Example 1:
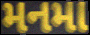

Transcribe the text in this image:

મનમા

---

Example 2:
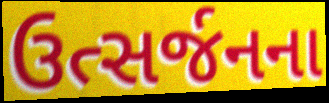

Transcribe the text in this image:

ઉત્સર્જનના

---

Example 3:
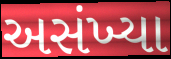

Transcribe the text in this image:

અસંખ્યા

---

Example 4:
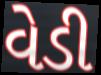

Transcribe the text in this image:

વેડી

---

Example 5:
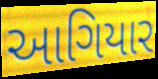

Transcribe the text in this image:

આગિયાર